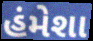
હંમેશા